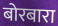
बोरबारा